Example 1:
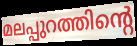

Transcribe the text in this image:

മലപ്പുറത്തിന്റെ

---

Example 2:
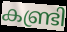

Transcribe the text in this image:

കണ്ട്രി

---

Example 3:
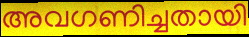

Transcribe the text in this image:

അവഗണിച്ചതായി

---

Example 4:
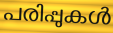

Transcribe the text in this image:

പരിപ്പുകൾ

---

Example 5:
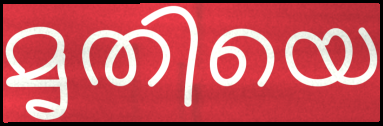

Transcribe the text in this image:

മൃതിയെ